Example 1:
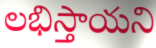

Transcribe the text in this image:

లభిస్తాయని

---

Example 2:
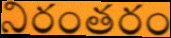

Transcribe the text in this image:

నిరంతరం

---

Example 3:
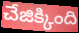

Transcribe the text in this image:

చేజిక్కింది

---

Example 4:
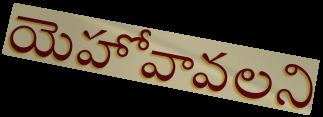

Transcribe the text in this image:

యెహోవావలని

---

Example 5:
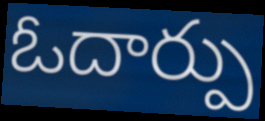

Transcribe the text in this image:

ఓదార్పు